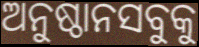
ଅନୁଷ୍ଠାନସବୁକୁ